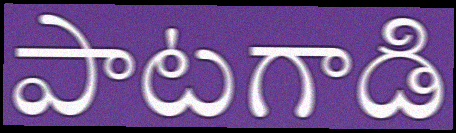
పాటగాడి